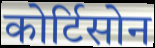
कोर्टिसोन